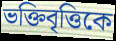
ভক্তিবৃত্তিকে